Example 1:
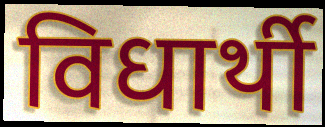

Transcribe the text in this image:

विधार्थी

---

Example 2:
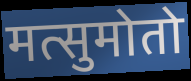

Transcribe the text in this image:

मत्सुमोतो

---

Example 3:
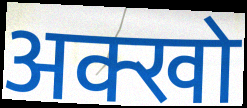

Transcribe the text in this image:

अक्खो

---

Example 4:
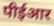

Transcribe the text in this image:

पीईआर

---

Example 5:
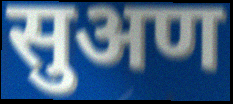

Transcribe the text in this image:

सुअण